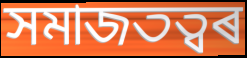
সমাজতত্বৰ